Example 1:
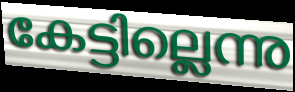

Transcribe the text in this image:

കേട്ടില്ലെന്നു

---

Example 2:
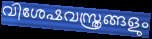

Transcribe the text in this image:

വിശേഷവസ്ത്രങ്ങളും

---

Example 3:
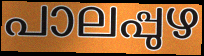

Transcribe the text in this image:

പാലപ്പുഴ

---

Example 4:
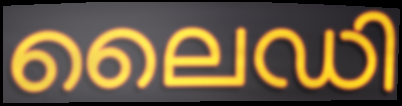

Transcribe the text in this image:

ലൈഡി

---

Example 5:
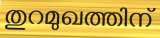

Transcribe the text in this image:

തുറമുഖത്തിന്